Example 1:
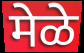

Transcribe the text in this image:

मेळे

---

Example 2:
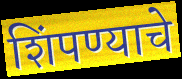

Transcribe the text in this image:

शिंपण्याचे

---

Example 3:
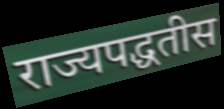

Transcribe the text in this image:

राज्यपद्धतीस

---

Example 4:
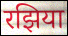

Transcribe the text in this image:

रझिया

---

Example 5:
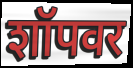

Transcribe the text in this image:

शॉपवर